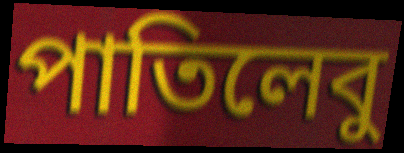
পাতিলেবু